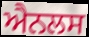
ਐਨਲਸ